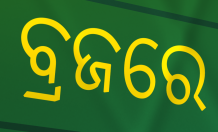
ବ୍ରଜରେ